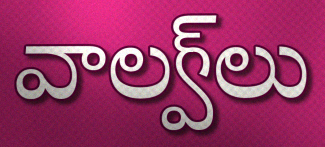
వాల్వ్‌లు